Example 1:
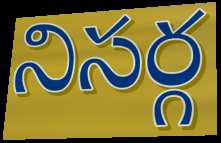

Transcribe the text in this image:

నిసర్గ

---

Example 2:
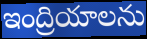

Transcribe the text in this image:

ఇంద్రియాలను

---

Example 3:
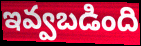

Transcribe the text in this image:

ఇవ్వబడింది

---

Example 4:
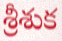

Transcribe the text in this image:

శ్రీశుక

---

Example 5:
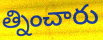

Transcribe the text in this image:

త్నించారు